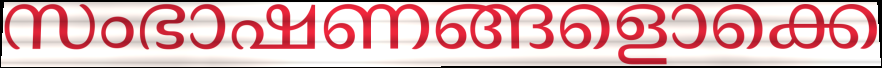
സംഭാഷണങ്ങളൊക്കെ